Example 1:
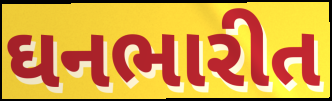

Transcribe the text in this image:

ઘનભારીત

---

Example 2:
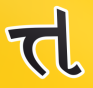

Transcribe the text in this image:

ત્ત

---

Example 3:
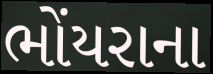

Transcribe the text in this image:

ભોંયરાના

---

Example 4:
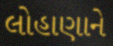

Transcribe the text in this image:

લોહાણાને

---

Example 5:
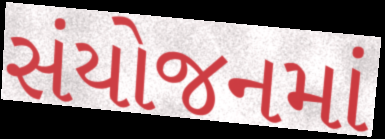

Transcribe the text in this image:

સંયોજનમાં